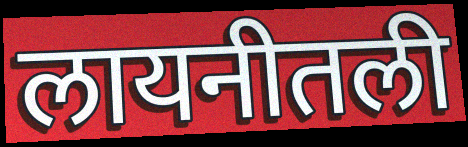
लायनीतली